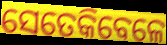
ସେତେକିବେଳେ